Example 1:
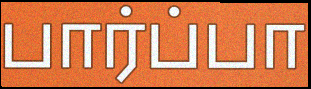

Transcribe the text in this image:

பார்ப்பா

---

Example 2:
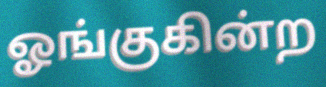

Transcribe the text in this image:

ஓங்குகின்ற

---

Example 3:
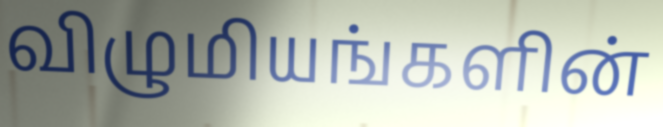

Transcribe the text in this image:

விழுமியங்களின்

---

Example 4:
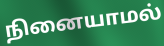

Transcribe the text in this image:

நினையாமல்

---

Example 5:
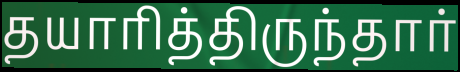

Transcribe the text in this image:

தயாரித்திருந்தார்